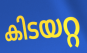
കിടയറ്റ